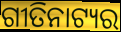
ଗୀତିନାଟ୍ୟର